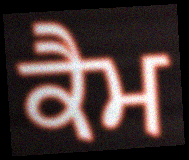
ਕੈਮ